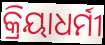
କ୍ରିୟାଧର୍ମୀ